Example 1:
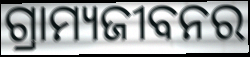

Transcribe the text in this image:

ଗ୍ରାମ୍ୟଜୀବନର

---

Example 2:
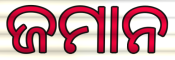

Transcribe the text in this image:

ଜମାନ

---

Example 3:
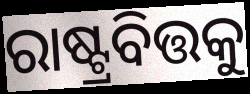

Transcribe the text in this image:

ରାଷ୍ଟ୍ରବିତ୍ତକୁ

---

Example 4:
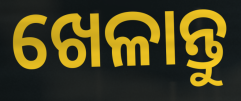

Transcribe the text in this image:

ଖେଳାନ୍ତୁ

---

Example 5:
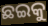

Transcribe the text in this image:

ଛଇକୁ